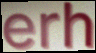
erh